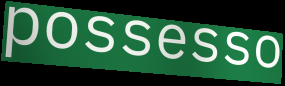
possesso